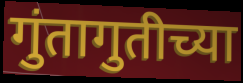
गुंतागुतीच्या